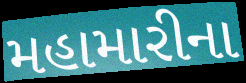
મહામારીના